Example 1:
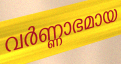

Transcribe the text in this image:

വർണ്ണാഭമായ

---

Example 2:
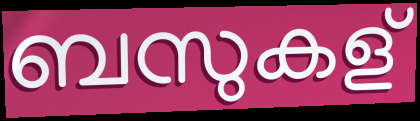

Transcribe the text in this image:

ബസുകള്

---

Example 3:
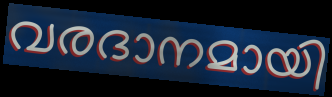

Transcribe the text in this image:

വരദാനമായി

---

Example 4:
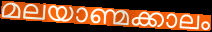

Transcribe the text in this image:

മലയാണ്മക്കാലം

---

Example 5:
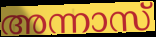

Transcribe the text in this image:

അന്നാസ്